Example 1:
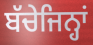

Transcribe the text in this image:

ਬੱਚੇਜਿਨ੍ਹਾਂ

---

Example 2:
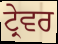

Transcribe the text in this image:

ਟ੍ਰੇਵਰ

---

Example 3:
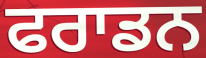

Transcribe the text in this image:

ਫਰਾਡਨ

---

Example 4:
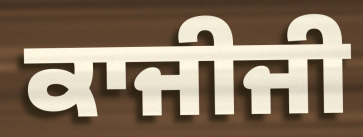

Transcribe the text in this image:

ਕਾਜੀਜੀ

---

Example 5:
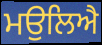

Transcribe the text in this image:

ਮਉਲਿਐ